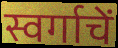
स्वर्गाचें